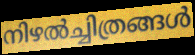
നിഴൽച്ചിത്രങ്ങൾ